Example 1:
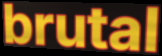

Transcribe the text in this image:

brutal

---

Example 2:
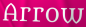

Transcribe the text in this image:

Arrow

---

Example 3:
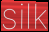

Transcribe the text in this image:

silk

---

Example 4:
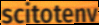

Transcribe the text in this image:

scitotenv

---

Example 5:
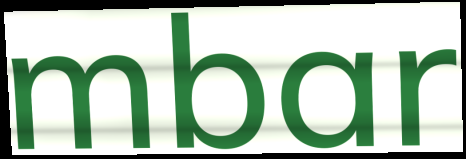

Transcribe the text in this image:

mbar